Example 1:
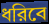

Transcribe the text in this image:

ধরিবে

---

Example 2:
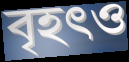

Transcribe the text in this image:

বৃহৎও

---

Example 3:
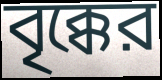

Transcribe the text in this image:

বৃক্কের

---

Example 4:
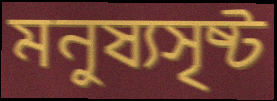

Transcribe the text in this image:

মনুষ্যসৃষ্ট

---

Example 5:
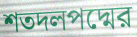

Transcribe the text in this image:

শতদলপদ্মের